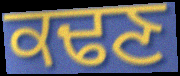
ਕਢਣ